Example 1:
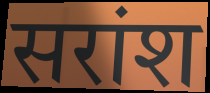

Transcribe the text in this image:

सरांश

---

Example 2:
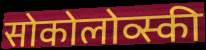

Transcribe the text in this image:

सोकोलोव्स्की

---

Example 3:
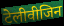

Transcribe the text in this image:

टेलीवीजिन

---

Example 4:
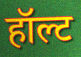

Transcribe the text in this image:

हॉल्ट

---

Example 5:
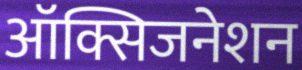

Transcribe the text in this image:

ऑक्सिजनेशन